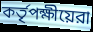
কর্তৃপক্ষীয়েরা